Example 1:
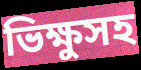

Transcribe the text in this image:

ভিক্ষুসহ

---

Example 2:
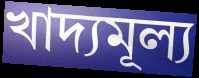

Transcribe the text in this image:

খাদ্যমূল্য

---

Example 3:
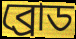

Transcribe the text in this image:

ব্রোড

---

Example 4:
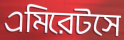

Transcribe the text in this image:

এমিরেটসে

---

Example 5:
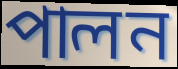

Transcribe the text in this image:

পালন